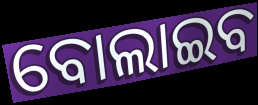
ବୋଲାଇବ